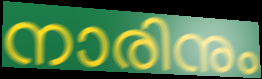
നാരിനും